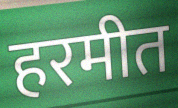
हरमीत